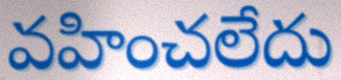
వహించలేదు